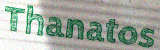
Thanatos